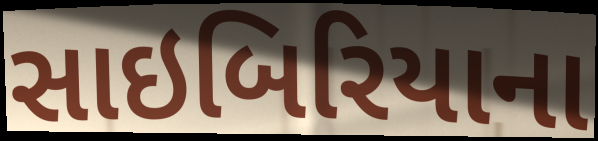
સાઇબિરિયાના